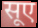
सूए